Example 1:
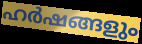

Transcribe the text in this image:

ഹർഷങ്ങളും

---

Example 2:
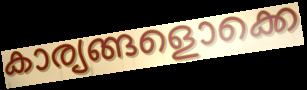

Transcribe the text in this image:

കാര്യങ്ങളൊക്കെ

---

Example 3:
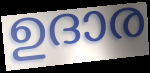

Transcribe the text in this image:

ഉദാര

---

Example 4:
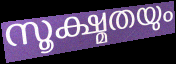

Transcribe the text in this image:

സൂക്ഷ്മതയും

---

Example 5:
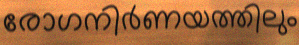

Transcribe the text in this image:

രോഗനിർണയത്തിലും